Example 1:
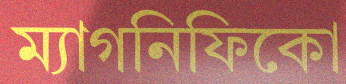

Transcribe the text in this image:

ম্যাগনিফিকো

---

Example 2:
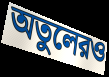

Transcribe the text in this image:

অতুলেরও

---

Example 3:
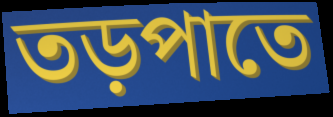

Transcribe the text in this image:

তড়পাতে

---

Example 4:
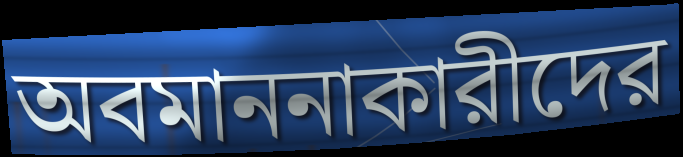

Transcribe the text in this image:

অবমাননাকারীদের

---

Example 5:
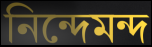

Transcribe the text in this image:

নিন্দেমন্দ